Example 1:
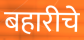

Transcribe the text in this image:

बहारीचे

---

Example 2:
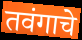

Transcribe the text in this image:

तवंगाचे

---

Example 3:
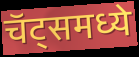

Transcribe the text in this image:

चॅट्समध्ये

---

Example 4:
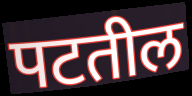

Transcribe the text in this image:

पटतील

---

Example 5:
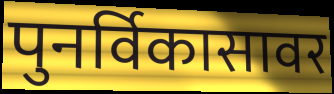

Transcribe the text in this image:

पुनर्विकासावर